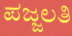
ಪಜ್ಜಲತಿ